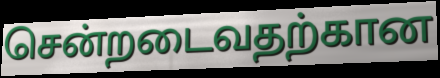
சென்றடைவதற்கான